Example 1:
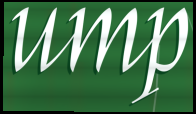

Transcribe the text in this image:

ump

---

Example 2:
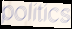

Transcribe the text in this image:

politics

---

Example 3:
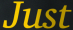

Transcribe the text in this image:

Just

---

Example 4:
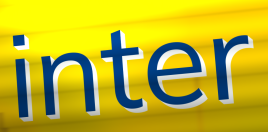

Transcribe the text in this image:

inter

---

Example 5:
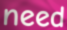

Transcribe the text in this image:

need